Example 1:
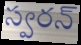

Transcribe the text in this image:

స్వరన్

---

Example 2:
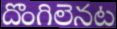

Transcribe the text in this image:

దొంగిలెనట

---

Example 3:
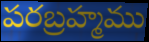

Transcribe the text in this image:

పరబ్రహ్మము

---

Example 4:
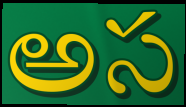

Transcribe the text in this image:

అస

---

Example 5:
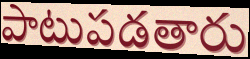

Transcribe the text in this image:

పాటుపడతారు